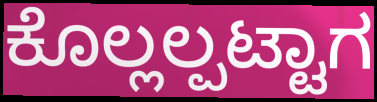
ಕೊಲ್ಲಲ್ಪಟ್ಟಾಗ